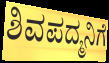
ಶಿವಪದ್ಮನಿಗೆ